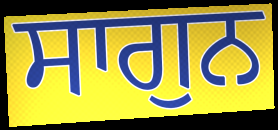
ਸਾਗੁਨ